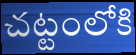
చట్టంలోకి